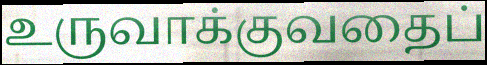
உருவாக்குவதைப்